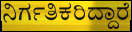
ನಿರ್ಗತಿಕರಿದ್ದಾರೆ